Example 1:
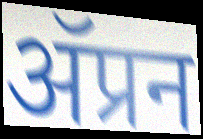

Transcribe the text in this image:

ॲप्रन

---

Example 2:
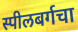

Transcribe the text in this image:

स्पीलबर्गचा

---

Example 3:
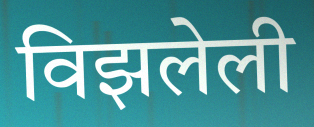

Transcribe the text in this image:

विझलेली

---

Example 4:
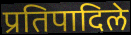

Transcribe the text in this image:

प्रतिपादिले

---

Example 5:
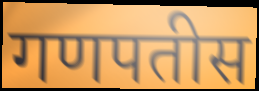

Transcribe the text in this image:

गणपतीस